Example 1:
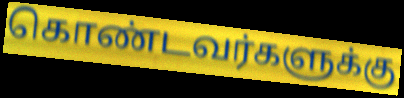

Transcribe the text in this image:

கொண்டவர்களுக்கு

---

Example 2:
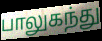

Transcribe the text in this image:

பாலுகந்து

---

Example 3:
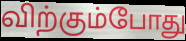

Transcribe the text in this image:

விற்கும்போது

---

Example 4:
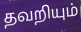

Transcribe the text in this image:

தவறியும்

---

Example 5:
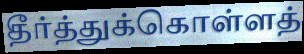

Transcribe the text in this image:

தீர்த்துக்கொள்ளத்